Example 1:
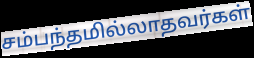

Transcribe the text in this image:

சம்பந்தமில்லாதவர்கள்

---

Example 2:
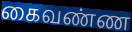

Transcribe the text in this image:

கைவண்ண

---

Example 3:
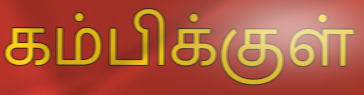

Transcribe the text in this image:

கம்பிக்குள்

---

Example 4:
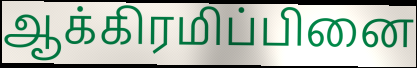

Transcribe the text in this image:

ஆக்கிரமிப்பினை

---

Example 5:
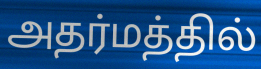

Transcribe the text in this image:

அதர்மத்தில்